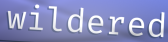
wildered